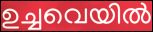
ഉച്ചവെയിൽ